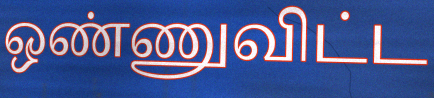
ஒண்ணுவிட்ட